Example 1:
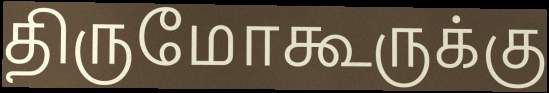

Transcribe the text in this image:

திருமோகூருக்கு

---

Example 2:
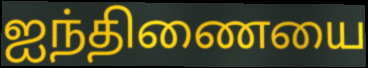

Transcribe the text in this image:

ஐந்திணையை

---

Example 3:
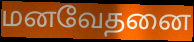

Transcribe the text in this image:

மனவேதனை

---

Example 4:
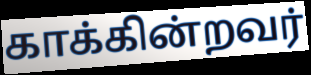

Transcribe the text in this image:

காக்கின்றவர்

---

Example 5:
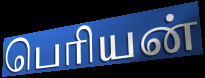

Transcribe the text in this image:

பெரியன்